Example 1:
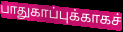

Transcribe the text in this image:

பாதுகாப்புக்காகச்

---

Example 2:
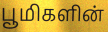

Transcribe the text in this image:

பூமிகளின்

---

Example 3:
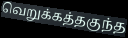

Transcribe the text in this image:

வெறுக்கத்தகுந்த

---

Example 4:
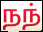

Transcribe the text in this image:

நந்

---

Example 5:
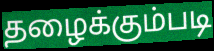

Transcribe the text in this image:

தழைக்கும்படி